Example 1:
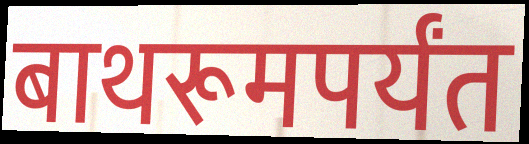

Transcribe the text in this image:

बाथरूमपर्यंत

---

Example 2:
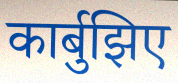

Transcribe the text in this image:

कार्बुझिए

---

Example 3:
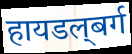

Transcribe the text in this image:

हायडल्‌बर्ग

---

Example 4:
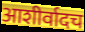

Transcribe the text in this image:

आशीर्वादच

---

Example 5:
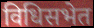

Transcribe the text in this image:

विधिसभेत